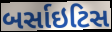
બર્સાઇટિસ